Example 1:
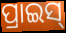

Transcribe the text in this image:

ପ୍ରାଇସ୍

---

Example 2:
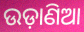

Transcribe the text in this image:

ଉଡ଼ାଣିଆ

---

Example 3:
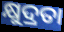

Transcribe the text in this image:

କ୍ଷୁଦ୍ରତା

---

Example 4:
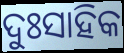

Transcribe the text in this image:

ଦୁଃସାହିକ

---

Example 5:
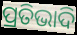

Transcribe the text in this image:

ପ୍ରତିଭାଦି